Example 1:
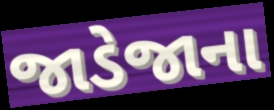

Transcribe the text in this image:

જાડેજાના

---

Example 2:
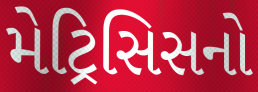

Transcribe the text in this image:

મેટ્રિસિસનો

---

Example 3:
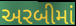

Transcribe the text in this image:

અરબીમાં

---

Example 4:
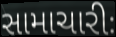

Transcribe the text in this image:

સામાચારીઃ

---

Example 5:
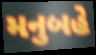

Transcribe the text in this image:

મનુબહે